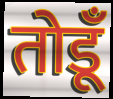
तोडूँ